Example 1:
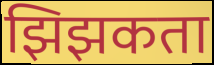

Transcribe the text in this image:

झिझकता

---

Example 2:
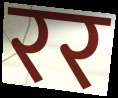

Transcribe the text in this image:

रर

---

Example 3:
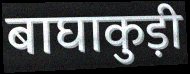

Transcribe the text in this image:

बाघाकुड़ी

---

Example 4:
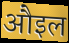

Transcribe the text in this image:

औइल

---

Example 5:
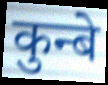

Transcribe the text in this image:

कुन्बे